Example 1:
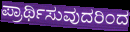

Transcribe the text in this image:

ಪ್ರಾರ್ಥಿಸುವುದರಿಂದ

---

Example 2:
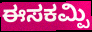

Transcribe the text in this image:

ಈಸಕಮ್ಪಿ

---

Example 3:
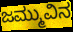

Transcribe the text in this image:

ಜಮ್ಮುವಿನ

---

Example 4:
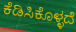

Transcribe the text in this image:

ಕೆಡಿಸಿಕೊಳ್ಳದೆ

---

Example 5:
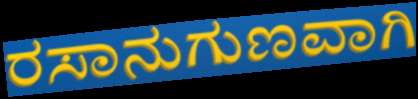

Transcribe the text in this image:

ರಸಾನುಗುಣವಾಗಿ